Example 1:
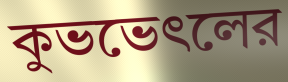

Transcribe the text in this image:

কুভভেৎলের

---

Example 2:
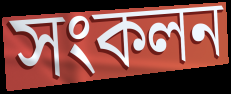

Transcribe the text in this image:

সংকলন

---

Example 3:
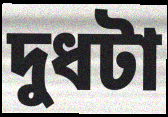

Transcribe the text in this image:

দুধটা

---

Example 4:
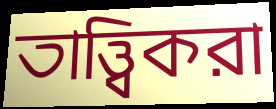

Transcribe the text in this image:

তাত্ত্বিকরা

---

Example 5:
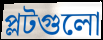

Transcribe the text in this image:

প্লটগুলো